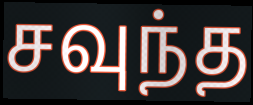
சவுந்த